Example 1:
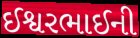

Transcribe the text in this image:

ઈશ્વરભાઈની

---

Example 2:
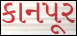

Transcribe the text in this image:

કાનપૂર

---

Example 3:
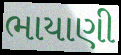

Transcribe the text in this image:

ભાયાણી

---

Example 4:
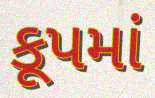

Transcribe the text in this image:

કૂપમાં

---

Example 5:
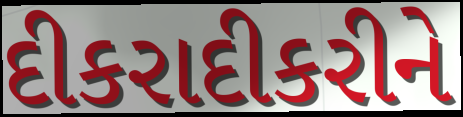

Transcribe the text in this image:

દીકરાદીકરીને